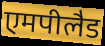
एमपीलैड